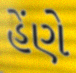
હેંણે